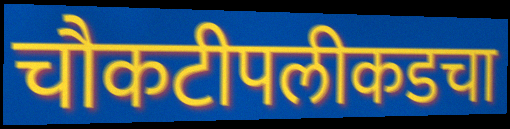
चौकटीपलीकडचा